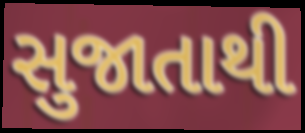
સુજાતાથી